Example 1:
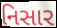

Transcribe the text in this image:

નિસાર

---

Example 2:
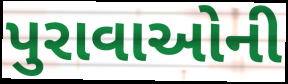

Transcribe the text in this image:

પુરાવાઓની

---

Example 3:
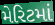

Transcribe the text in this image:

મેરિટમાં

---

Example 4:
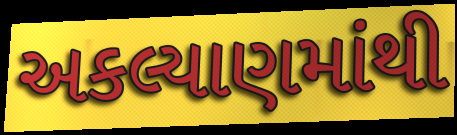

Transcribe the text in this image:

અકલ્યાણમાંથી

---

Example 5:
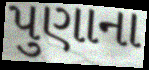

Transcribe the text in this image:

પુણાના